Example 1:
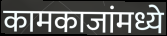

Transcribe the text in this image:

कामकाजांमध्ये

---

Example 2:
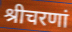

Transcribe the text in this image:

श्रीचरणां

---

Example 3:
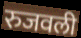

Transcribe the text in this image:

रुजवली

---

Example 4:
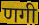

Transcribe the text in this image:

णगी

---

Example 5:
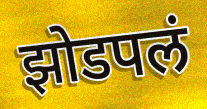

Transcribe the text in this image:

झोडपलं